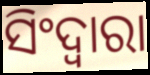
ସିଂଦ୍ୱାରା